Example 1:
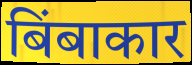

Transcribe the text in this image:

बिंबाकार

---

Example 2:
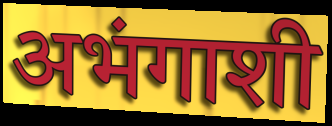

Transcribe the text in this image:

अभंगाशी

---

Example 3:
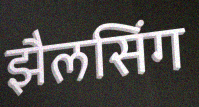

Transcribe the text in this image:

झैलसिंग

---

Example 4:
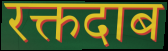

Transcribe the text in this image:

रक्तदाब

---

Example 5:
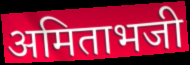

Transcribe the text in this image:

अमिताभजी